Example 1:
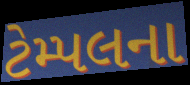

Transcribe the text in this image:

ટેમ્પલના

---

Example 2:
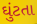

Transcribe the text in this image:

ઘુંટતા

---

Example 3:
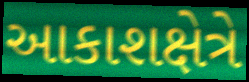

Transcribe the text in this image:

આકાશક્ષેત્રે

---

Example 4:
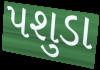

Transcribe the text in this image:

પશુડા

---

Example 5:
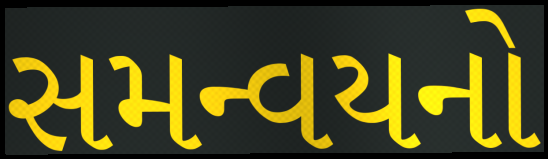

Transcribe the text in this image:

સમન્વયનો